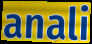
anali